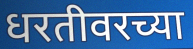
धरतीवरच्या